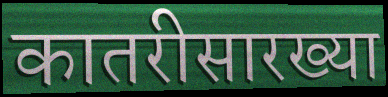
कातरीसारख्या